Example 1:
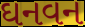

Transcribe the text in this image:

ઘનવન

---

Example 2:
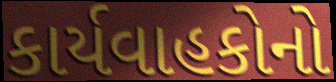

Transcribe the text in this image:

કાર્યવાહકોનો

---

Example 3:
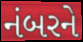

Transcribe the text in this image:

નંબરને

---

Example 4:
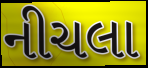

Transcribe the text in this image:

નીચલા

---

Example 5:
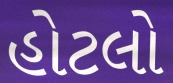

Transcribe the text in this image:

હોટલો